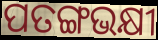
ପତଙ୍ଗଭକ୍ଷୀ